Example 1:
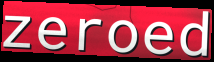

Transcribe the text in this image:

zeroed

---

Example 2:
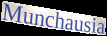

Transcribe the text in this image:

Munchausia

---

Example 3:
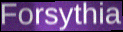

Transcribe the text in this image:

Forsythia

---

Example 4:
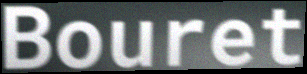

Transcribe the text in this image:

Bouret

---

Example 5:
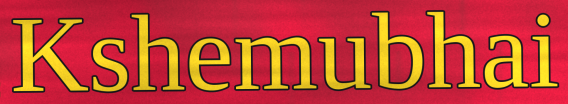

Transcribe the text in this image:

Kshemubhai